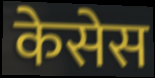
केसेस